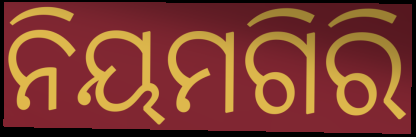
ନିୟମଗିରି